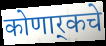
कोणार्कचे